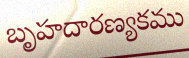
బృహదారణ్యకము